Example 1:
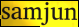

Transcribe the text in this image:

samjun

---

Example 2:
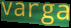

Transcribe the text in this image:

varga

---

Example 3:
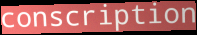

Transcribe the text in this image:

conscription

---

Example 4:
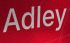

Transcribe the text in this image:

Adley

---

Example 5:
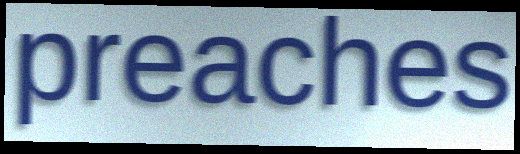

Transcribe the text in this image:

preaches